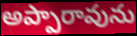
అప్పారావును